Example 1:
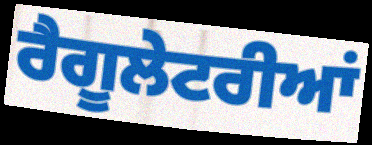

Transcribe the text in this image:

ਰੈਗੂਲੇਟਰੀਆਂ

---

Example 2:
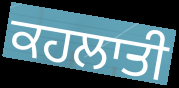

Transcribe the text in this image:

ਕਹਲਾਤੀ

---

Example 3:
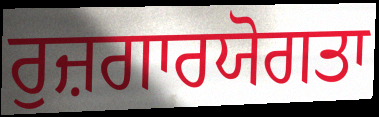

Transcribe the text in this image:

ਰੁਜ਼ਗਾਰਯੋਗਤਾ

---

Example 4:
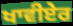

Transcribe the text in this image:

ਖਾਵੀਏਰ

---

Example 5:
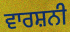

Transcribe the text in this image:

ਵਾਰਸ਼ਨੀ